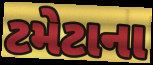
ટમેટાના